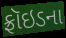
ફ્રૉઇડના